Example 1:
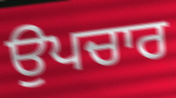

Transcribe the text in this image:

ਉਪਚਾਰ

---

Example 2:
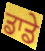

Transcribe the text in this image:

ਡਾਡੇ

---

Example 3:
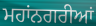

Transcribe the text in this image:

ਮਹਾਂਨਗਰੀਆਂ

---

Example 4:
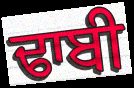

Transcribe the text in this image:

ਢਾਬੀ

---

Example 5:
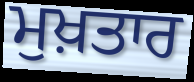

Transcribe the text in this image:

ਮੁਖ਼ਤਾਰ